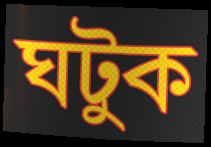
ঘটুক